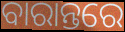
ବାରାନ୍ତରେ